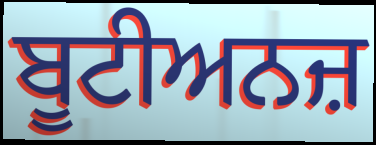
ਬੂਟੀਅਨਜ਼